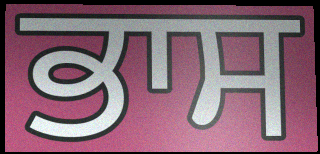
ਭਾਸ